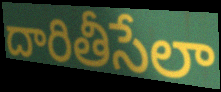
దారితీసేలా